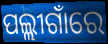
ପଲ୍ଲୀଗାଁରେ